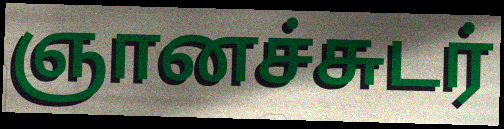
ஞானச்சுடர்